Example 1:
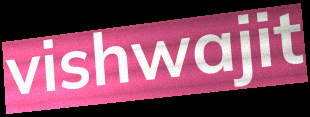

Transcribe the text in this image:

vishwajit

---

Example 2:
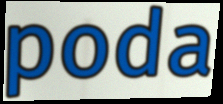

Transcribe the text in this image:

poda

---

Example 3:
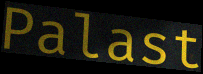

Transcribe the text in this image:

Palast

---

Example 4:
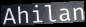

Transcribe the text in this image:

Ahilan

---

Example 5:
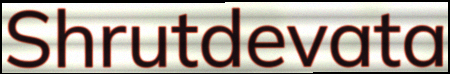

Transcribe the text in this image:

Shrutdevata